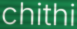
chithi